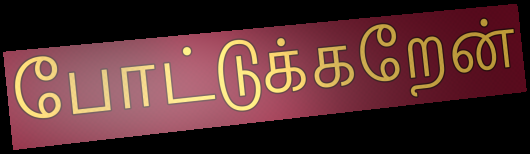
போட்டுக்கறேன்